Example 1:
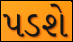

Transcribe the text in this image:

પડશે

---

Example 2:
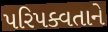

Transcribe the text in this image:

પરિપક્વતાને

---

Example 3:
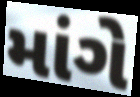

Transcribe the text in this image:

માંગે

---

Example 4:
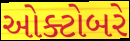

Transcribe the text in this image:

ઓક્ટોબરે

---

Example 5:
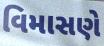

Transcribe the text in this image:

વિમાસણે